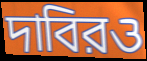
দাবিরও